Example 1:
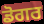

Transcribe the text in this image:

ਡੋਗਰ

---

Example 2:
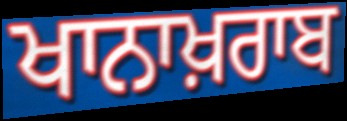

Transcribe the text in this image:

ਖਾਨਾਖ਼ਰਾਬ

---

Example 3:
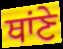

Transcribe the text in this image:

ਥਾਂਣੇ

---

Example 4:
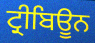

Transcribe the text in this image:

ਟ੍ਰੀਬਿਊਨ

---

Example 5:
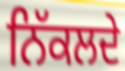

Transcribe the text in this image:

ਨਿੱਕਲਦੇ